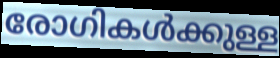
രോഗികൾക്കുള്ള